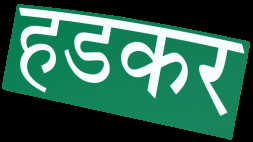
हडकर